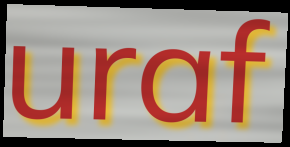
uraf